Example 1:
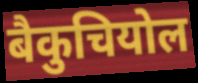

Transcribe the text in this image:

बैकुचियोल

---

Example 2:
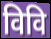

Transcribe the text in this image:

विवि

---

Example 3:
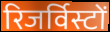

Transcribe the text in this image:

रिजर्विस्टों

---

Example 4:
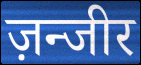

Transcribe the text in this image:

ज़न्जीर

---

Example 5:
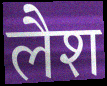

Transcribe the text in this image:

लैश